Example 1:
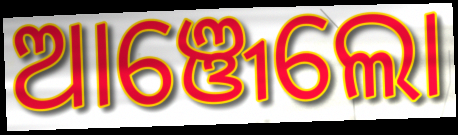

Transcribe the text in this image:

ଆଞ୍ଜେଲୋ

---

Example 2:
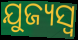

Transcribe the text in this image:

ଯୁଜ୍ୟସ୍ୱ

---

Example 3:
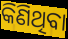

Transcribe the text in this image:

କିଣିଥିବା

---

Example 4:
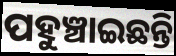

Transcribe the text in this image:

ପହୁଞ୍ଚାଇଛନ୍ତି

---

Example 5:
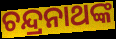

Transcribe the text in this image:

ଚନ୍ଦ୍ରନାଥଙ୍କ